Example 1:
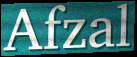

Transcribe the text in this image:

Afzal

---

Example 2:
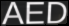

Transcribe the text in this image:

AED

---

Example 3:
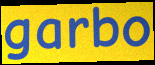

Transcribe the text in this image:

garbo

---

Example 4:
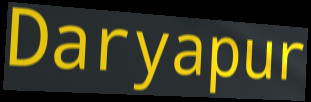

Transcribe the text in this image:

Daryapur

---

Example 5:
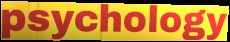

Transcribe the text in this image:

psychology